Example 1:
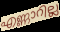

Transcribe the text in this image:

എണ്ണാറില്ല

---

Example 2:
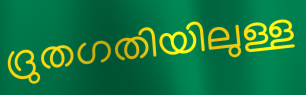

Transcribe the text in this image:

ദ്രുതഗതിയിലുള്ള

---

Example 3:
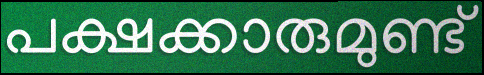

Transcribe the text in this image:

പക്ഷക്കാരുമുണ്ട്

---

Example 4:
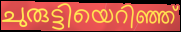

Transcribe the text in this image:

ചുരുട്ടിയെറിഞ്ഞ്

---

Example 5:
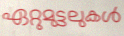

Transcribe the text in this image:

ഏറ്റുമുട്ടലുകൾ